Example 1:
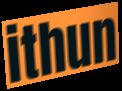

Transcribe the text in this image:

ithun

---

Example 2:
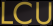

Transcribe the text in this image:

LCU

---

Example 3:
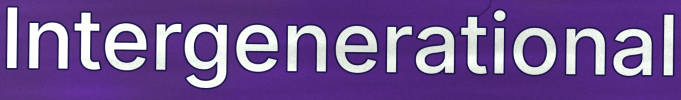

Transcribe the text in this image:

Intergenerational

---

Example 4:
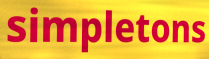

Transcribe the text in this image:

simpletons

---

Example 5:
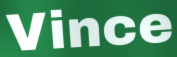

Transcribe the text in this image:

Vince